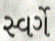
સ્વર્ગે